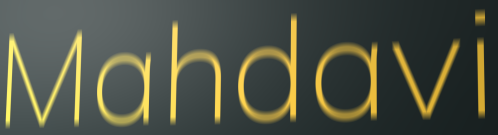
Mahdavi